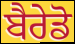
ਬੈਰੇਡੋ